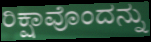
ರಿಕ್ಷಾವೊಂದನ್ನು